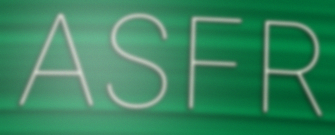
ASFR